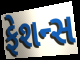
ફેશન્સ